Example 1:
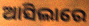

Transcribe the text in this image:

ଆସିଲାରେ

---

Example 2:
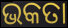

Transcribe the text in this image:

ଭକତା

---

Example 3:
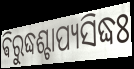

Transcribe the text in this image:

ଵିରୁଦ୍ଧଶ୍ଚାପ୍ଯସିଦ୍ଧଃ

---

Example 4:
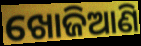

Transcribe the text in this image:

ଖୋଜିଆଣି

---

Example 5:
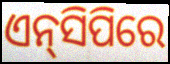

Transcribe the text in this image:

ଏନ୍‌ସିପିରେ